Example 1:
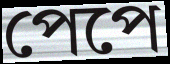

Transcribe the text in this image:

পেপে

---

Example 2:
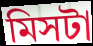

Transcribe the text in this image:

মিসটা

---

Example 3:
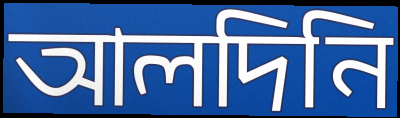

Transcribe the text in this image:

আলদিনি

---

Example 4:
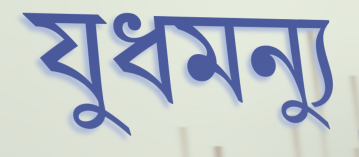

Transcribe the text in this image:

যুধমন্যু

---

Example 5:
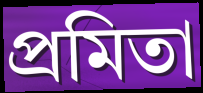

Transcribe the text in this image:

প্রমিতা